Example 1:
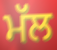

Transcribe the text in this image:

ਮੱਲ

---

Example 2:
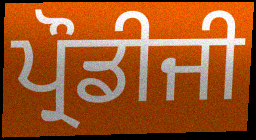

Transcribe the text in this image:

ਪ੍ਰੌਡੀਜੀ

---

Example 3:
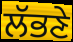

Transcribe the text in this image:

ਲੱਭਣੇ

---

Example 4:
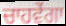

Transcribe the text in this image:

ਚਾਹਵੇਂਗਾ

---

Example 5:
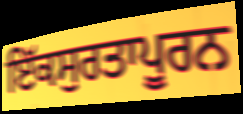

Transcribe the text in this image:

ਇੱਕਸੁਰਤਾਪੂਰਨ